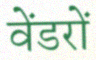
वेंडरों